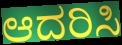
ಆದರಿಸಿ